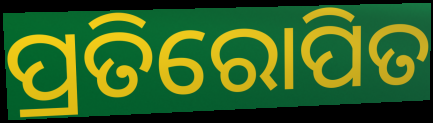
ପ୍ରତିରୋପିତ